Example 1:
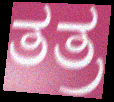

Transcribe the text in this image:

ತತ್ರ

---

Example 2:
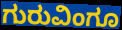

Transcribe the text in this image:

ಗುರುವಿಂಗೂ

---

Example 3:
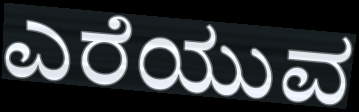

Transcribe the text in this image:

ಎರೆಯುವ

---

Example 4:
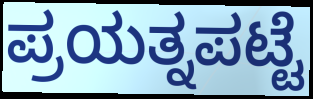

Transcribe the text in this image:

ಪ್ರಯತ್ನಪಟ್ಟೆ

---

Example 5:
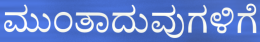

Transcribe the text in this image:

ಮುಂತಾದುವುಗಳಿಗೆ